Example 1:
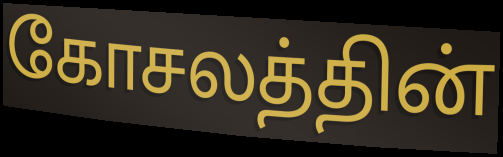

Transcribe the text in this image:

கோசலத்தின்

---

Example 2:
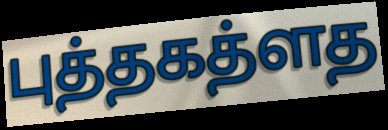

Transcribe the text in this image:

புத்தகத்ளத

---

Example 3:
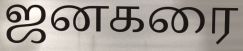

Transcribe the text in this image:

ஜனகரை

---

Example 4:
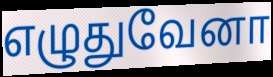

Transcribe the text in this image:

எழுதுவேனா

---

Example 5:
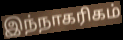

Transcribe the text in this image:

இந்நாகரிகம்